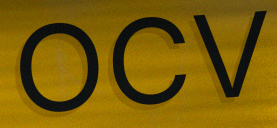
OCV